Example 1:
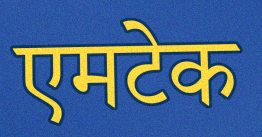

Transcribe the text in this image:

एमटेक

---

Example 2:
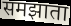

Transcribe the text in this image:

समझाता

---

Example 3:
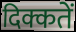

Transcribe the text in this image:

दिक्कतें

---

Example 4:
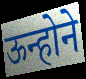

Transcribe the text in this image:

ऊन्होने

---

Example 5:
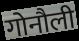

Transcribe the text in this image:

गोनौली